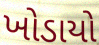
ખોડાયો